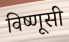
विष्णूसी